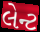
લેન્ટ